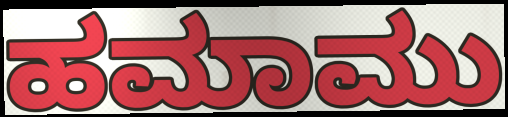
ಹಮಾಮು